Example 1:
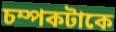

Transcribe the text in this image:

চম্পকটাকে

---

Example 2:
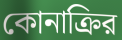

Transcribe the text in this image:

কোনাক্রির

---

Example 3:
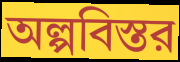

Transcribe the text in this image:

অল্পবিস্তর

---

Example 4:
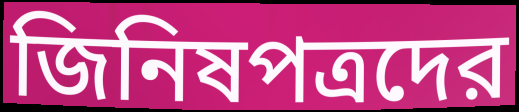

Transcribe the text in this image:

জিনিষপত্রদের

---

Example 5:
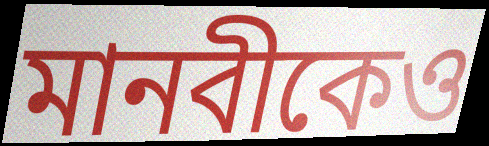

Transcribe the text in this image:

মানবীকেও